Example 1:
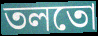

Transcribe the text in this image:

তলতো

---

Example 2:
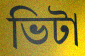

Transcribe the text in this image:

ভিটা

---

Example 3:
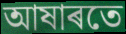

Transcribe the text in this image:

আষাৰতে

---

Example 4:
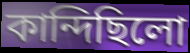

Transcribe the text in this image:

কান্দিছিলো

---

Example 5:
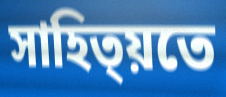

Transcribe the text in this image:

সাহিত্য়তে